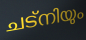
ചട്നിയും